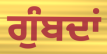
ਗੁੰਬਦਾਂ